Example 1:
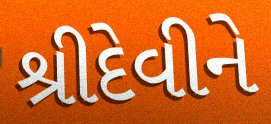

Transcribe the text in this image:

શ્રીદેવીને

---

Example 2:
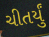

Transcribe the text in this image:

ચીતર્યું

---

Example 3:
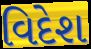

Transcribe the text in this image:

વિદેશ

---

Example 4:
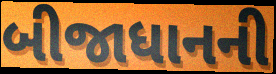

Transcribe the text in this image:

બીજાધાનની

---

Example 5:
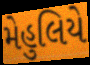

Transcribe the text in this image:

મેહુલિયે